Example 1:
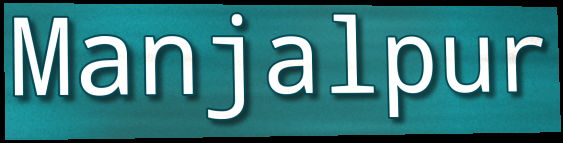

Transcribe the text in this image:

Manjalpur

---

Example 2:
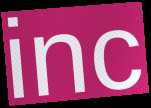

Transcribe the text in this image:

inc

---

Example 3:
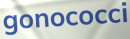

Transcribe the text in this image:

gonococci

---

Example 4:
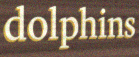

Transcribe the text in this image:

dolphins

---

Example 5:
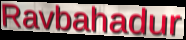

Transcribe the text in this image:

Ravbahadur